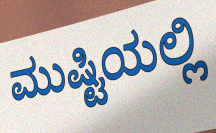
ಮುಷ್ಟಿಯಲ್ಲಿ